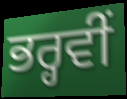
ਭਰ੍ਹਵੀਂ